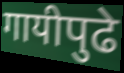
गायीपुढे